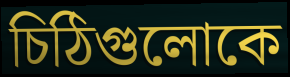
চিঠিগুলোকে